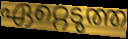
ഏറ്റെടുത്ത